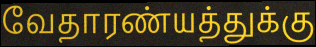
வேதாரண்யத்துக்கு